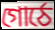
গোঠে